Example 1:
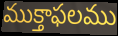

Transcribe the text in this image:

ముక్తాఫలము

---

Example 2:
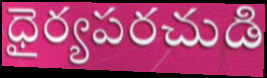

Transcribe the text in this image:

ధైర్యపరచుడి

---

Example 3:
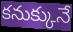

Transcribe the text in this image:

కనుక్కునే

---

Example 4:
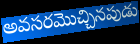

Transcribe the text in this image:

అవసరమొచ్చినపుడు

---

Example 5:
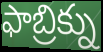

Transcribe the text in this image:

ఫాబ్రిక్ను